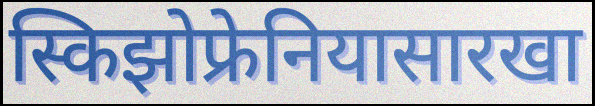
स्किझोफ्रेनियासारखा